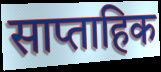
साप्‍ताहिक